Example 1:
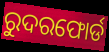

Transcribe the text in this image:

ରୁଦରଫୋର୍ଡ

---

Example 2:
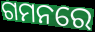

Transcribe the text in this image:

ଗମନରେ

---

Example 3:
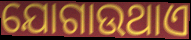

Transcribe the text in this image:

ଯୋଗାଉଥାଏ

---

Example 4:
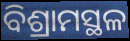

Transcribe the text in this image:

ବିଶ୍ରାମସ୍ଥଳ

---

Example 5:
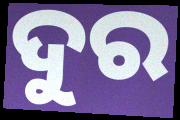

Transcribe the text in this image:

ଦୁର